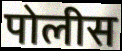
पोलीस